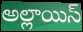
అల్లాయిస్